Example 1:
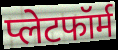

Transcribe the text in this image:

प्‍लेटफॉर्म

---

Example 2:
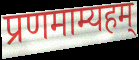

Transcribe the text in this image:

प्रणमाम्यहम्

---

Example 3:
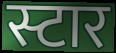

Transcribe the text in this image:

स्‍टार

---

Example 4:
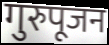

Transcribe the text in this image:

गुरुपूजन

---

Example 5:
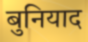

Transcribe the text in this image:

बुनियाद